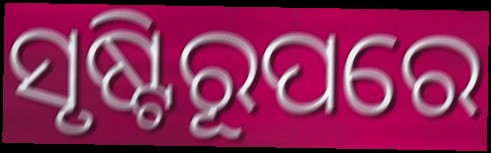
ସୃଷ୍ଟିରୂପରେ